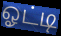
ஓட்டி